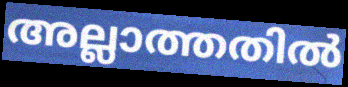
അല്ലാത്തതിൽ